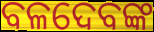
ବଳଦେବଙ୍କ